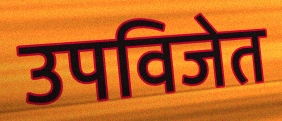
उपविजेत